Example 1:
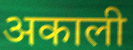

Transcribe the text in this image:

अकाली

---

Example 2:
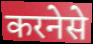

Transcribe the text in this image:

करनेसे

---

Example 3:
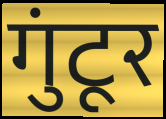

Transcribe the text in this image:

गुंटूर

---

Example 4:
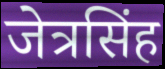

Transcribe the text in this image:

जेत्रसिंह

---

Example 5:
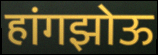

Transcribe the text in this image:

हांगझोऊ